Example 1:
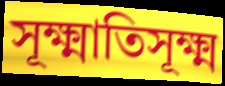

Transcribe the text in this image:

সূক্ষ্মাতিসূক্ষ্ম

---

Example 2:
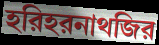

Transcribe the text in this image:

হরিহরনাথজির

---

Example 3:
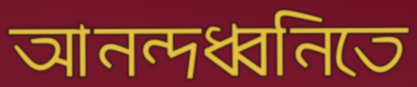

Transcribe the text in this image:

আনন্দধ্বনিতে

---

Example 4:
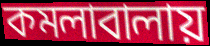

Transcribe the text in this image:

কমলাবালায়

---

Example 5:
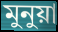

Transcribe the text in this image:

মুনুয়া